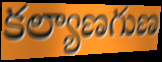
కల్యాణగుణ